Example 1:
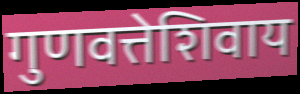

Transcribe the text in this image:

गुणवत्तेशिवाय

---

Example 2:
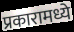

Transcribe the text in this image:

प्रकारामध्ये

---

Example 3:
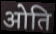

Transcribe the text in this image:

ओति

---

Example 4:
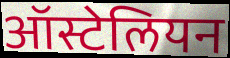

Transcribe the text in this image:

ऑस्टेलियन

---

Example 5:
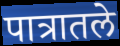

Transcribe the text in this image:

पात्रातले